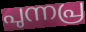
പുന്നപ്ര